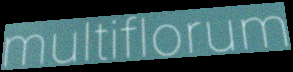
multiflorum